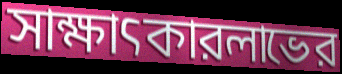
সাক্ষাৎকারলাভের